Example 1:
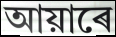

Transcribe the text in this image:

আয়াৰে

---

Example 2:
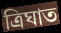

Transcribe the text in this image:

ত্ৰিঘাত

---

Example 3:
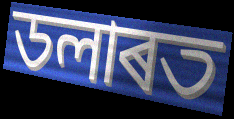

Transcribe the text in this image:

ডলাৰত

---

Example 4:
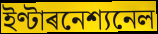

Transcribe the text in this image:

ইণ্টাৰনেশ্যনেল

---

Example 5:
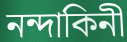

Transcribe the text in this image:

নন্দাকিনী